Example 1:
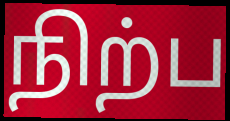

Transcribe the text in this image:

நிற்ப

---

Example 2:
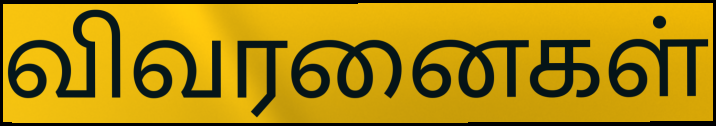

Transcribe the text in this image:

விவரனைகள்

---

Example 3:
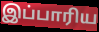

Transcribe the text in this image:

இப்பாரிய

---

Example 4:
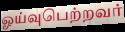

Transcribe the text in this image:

ஓய்வுபெற்றவர்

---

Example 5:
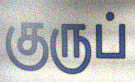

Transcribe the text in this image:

குருப்